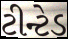
ટીન્ટેડ